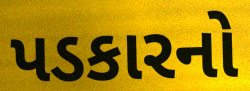
પડકારનો